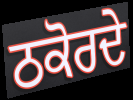
ਠਕੋਰਦੇ